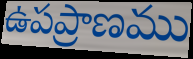
ఉపప్రాణము